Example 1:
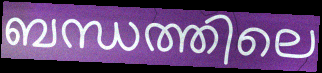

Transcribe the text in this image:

ബന്ധത്തിലെ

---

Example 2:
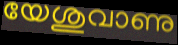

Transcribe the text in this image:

യേശുവാണു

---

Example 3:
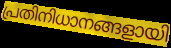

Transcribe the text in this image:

പ്രതിനിധാനങ്ങളായി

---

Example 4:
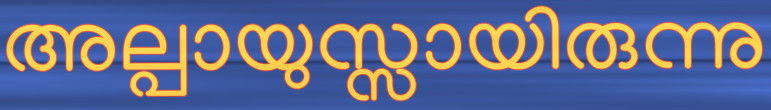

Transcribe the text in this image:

അല്പായുസ്സായിരുന്നു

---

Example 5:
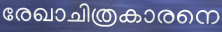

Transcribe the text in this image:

രേഖാചിത്രകാരനെ